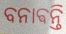
ବନାଵନ୍ତି